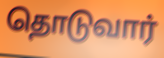
தொடுவார்